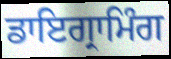
ਡਾਇਗ੍ਰਾਮਿੰਗ